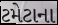
ટમેટાના